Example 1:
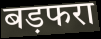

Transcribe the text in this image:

बड़फरा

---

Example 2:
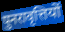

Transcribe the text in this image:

पुनरावृत्तियों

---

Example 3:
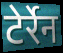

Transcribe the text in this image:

टेर्रेन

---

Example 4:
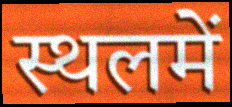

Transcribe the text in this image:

स्थलमें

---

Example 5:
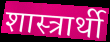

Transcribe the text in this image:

शास्त्रार्थी